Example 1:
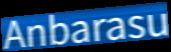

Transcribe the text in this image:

Anbarasu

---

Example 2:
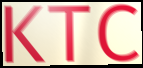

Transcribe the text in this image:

KTC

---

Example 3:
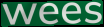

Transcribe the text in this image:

wees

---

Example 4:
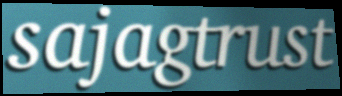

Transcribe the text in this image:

sajagtrust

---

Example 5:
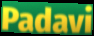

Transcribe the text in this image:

Padavi